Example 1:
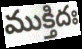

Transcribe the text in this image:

ముక్తిదః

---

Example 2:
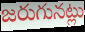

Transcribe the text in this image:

జరుగునట్లు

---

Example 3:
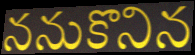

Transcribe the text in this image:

ననుకొనిన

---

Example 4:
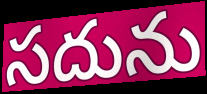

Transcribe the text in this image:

సదును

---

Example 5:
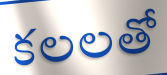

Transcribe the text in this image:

కలలతో